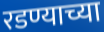
रडण्याच्या